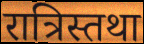
रात्रिस्तथा